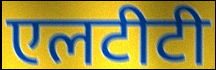
एलटीटी